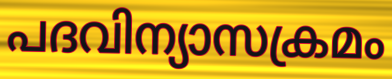
പദവിന്യാസക്രമം